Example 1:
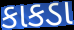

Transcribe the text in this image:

કાકડા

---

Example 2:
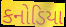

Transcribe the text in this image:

કનોડિયા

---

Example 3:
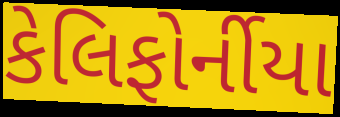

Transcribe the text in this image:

કેલિફોર્નીયા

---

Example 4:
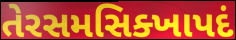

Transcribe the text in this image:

તેરસમસિક્ખાપદં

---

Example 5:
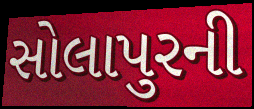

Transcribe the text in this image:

સોલાપુરની